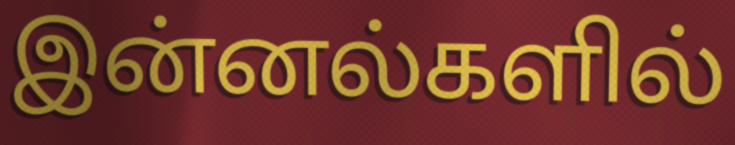
இன்னல்களில்